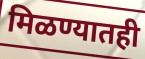
मिळण्यातही